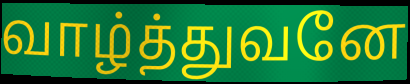
வாழ்த்துவனே